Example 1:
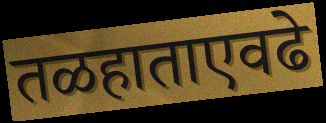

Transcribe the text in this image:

तळहाताएवढे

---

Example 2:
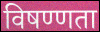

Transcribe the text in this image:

विषण्णता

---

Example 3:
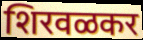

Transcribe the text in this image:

शिरवळकर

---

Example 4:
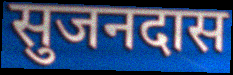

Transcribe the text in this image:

सुजनदास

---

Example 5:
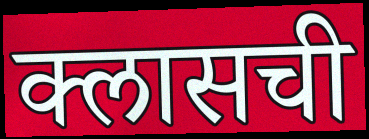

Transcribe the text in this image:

क्लासची